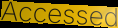
Accessed